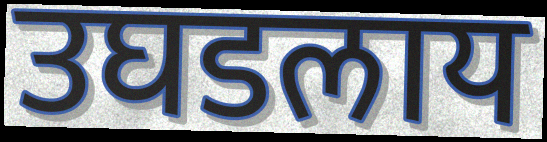
उघडलाय